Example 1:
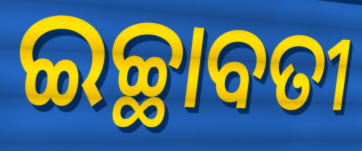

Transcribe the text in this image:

ଇଚ୍ଛାବତୀ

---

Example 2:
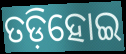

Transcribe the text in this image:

ତଡ଼ିହୋଇ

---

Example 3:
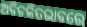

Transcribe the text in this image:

ଅବିଚଳିତଭାବରେ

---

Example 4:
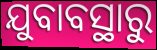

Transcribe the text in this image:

ଯୁବାବସ୍ଥାରୁ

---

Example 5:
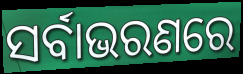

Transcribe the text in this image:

ସର୍ବାଭରଣରେ